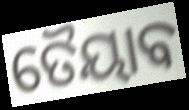
ତୈୟାବ